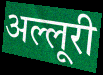
अल्लूरी